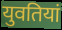
युवतियां